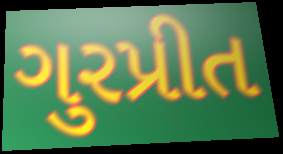
ગુરપ્રીત